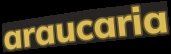
araucaria